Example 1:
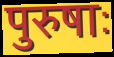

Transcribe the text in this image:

पुरुषाः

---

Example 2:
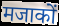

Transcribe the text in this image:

मजाकों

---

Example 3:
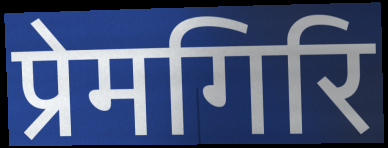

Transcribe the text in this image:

प्रेमगिरि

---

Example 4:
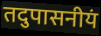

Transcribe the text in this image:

तदुपासनीयं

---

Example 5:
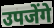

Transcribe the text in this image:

उपजेंगे